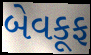
બેવકૂફ